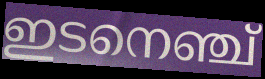
ഇടനെഞ്ച്